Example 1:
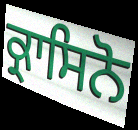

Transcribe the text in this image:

ਕ੍ਰਾਸਿਨੋ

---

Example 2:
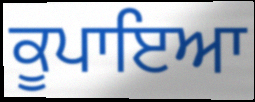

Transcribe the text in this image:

ਕੂਪਾਇਆ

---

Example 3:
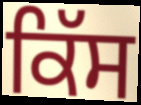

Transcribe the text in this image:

ਕਿੱਸ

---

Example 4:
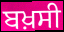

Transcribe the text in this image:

ਬਖ਼ਸੀ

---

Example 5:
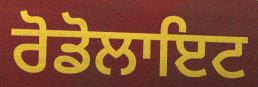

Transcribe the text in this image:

ਰੋਡੋਲਾਇਟ